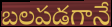
బలపడగానే